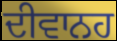
ਦੀਵਾਨਹ